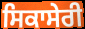
ਸਿਕਾਸੇਰੀ